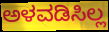
ಅಳವಡಿಸಿಲ್ಲ